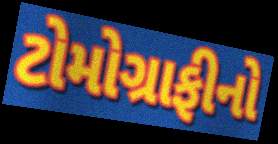
ટોમોગ્રાફીનો